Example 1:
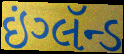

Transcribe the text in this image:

ઇંગ્લૅન્ડ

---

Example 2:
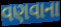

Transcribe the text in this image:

વણવાના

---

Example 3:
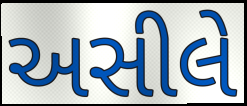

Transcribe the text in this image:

અસીલે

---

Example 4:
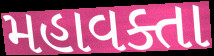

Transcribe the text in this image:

મહાવક્તા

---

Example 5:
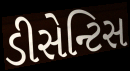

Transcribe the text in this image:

ડીસેન્ટિસ